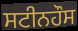
ਸਟੀਨਹੌਸ